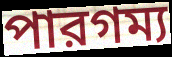
পারগম্য